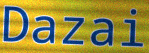
Dazai